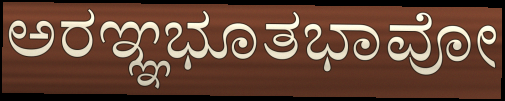
ಅರಞ್ಞಭೂತಭಾವೋ